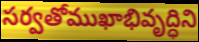
సర్వతోముఖాభివృద్ధిని